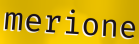
merione